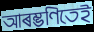
আৰম্ভণিতেই